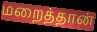
மறைத்தான்